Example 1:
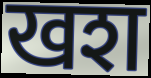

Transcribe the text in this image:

खश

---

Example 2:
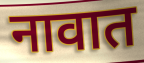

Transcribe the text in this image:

नावात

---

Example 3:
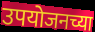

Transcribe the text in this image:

उपयोजनच्या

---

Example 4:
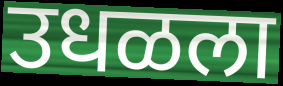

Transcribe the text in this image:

उधळला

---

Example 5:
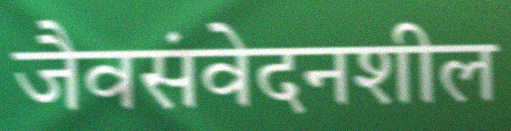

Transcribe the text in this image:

जैवसंवेदनशील